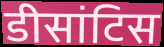
डीसांटिस